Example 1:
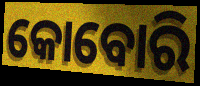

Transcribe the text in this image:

କୋବୋରି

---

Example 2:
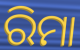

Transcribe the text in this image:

ରିମା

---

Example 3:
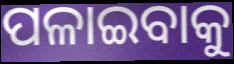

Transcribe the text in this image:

ପଳାଇବାକୁ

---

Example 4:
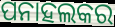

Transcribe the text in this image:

ପନାହଲକର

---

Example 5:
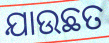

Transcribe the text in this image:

ଯାଉଛତ